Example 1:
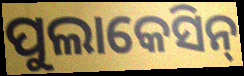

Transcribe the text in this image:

ପୁଲାକେସିନ୍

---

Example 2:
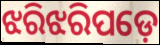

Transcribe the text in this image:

ଝରିଝରିପଡ଼େ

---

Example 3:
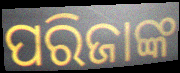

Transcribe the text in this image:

ପରିଜାଙ୍କ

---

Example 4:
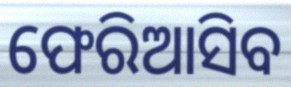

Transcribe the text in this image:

ଫେରିଆସିବ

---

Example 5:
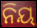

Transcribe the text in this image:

ନିୟ